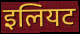
इलियट